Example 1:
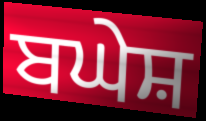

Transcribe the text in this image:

ਬਘੇਸ਼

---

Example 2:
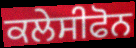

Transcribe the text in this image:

ਕਲੇਸੀਫੋਨ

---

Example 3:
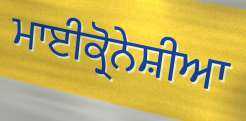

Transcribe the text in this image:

ਮਾਈਕ੍ਰੋਨੇਸ਼ੀਆ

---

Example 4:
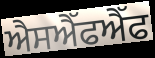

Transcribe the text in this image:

ਐਸਐੱਫਐੱਫ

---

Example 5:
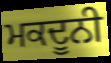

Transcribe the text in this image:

ਮਕਦੂਨੀ